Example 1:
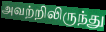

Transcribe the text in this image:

அவற்றிலிருந்து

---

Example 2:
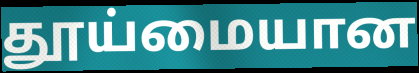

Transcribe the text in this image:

தூய்மையான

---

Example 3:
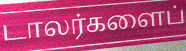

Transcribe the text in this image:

டாலர்களைப்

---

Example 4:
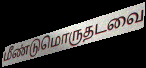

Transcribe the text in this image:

மீண்டுமொருதடவை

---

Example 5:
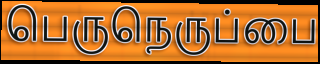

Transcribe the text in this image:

பெருநெருப்பை